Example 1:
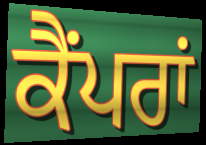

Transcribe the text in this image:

ਕੈਂਪਰਾਂ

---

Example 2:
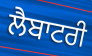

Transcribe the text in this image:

ਲੈਬਾਟਰੀ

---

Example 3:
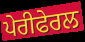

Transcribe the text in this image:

ਪੇਰੀਫੇਰਲ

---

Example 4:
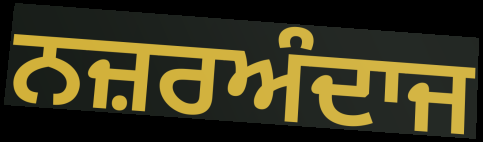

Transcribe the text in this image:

ਨਜ਼ਰਅੰਦਾਜ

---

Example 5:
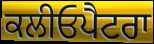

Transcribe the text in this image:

ਕਲੀਓਪੈਟਰਾ